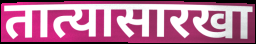
तात्यासारखा